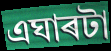
এঘাৰটা